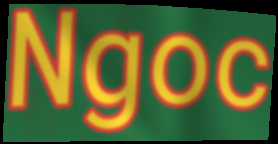
Ngoc